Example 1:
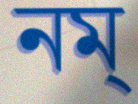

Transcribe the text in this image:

নম্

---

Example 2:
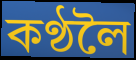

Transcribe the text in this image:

কণ্ঠলৈ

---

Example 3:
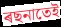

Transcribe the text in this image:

ৰছনাতেই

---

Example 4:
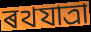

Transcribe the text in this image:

ৰথযাত্ৰা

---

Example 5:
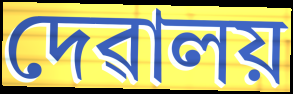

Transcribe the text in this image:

দেৱালয়